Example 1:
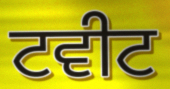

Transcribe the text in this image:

ਟਵੀਟ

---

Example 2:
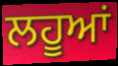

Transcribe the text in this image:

ਲਹੂਆਂ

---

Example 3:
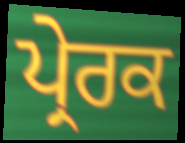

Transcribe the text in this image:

ਪ੍ਰੇਰਕ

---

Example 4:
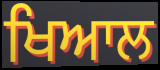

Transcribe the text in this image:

ਖਿਆਲ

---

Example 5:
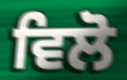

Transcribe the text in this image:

ਵਿਲੋ